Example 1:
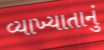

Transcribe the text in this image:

વ્યાખ્યાતાનું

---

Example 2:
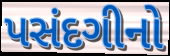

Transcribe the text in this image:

પસંદગીનો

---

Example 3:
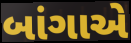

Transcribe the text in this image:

બાંગાએ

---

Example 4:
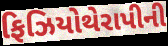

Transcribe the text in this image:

ફિઝિયોથેરાપીની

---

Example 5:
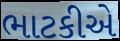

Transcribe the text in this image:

ભાટકીએ